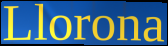
Llorona